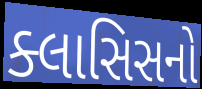
ક્લાસિસનો